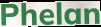
Phelan